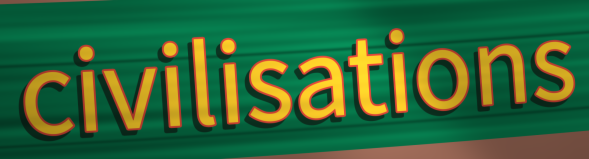
civilisations